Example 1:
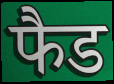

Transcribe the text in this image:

फैड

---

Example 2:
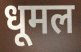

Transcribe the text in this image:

धूमल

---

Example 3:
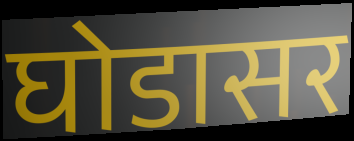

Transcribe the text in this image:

घोडासर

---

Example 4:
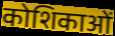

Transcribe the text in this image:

कोशिकाओं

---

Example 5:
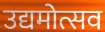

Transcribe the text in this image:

उद्यमोत्सव